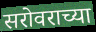
सरोवराच्या